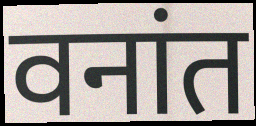
वनांत